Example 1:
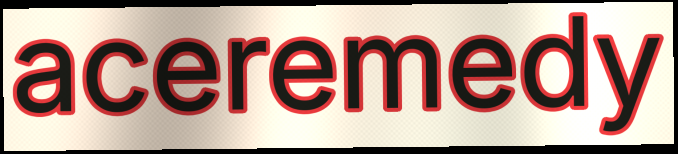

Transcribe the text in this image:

aceremedy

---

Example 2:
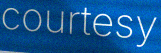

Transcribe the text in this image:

courtesy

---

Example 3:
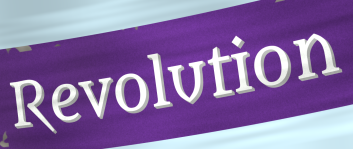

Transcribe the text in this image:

Revolution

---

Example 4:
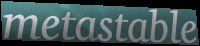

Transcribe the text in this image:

metastable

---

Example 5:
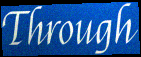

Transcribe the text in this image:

Through